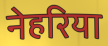
नेहरिया